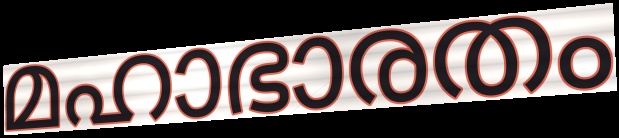
മഹാഭാരതം